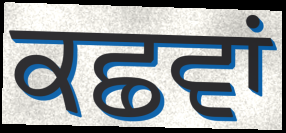
ਕਛਵਾਂ